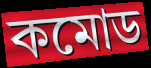
কমোড